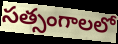
సత్సంగాలలో